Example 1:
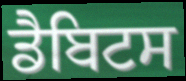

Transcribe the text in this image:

ਡੈਬਿਟਸ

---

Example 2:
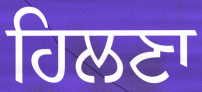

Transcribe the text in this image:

ਹਿਲਣਾ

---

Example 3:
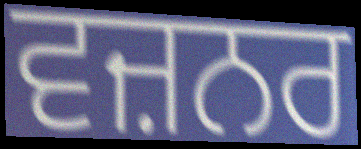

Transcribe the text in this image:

ਵਜ਼ਨਰ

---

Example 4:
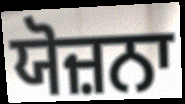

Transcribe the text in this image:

ਯੋਜ਼ਨਾ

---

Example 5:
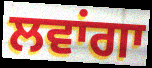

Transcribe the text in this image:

ਲਵਾਂਗਾ